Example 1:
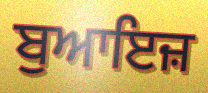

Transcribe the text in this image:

ਬੁਆਇਜ਼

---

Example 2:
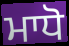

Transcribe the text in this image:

ਮਾਧੋ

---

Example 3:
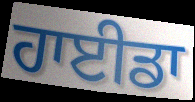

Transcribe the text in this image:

ਹਾਈਡਾ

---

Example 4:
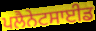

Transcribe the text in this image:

ਪਲੈਨੇਟਸਾਈਡ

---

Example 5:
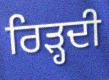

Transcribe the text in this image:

ਰਿੜ੍ਹਦੀ